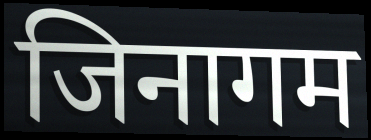
जिनागम